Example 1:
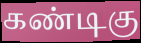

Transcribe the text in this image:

கண்டிகு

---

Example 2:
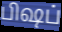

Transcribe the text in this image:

பிஷப்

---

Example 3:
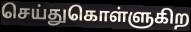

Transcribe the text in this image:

செய்துகொள்ளுகிற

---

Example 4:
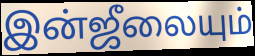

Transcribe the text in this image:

இன்ஜீலையும்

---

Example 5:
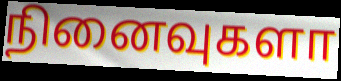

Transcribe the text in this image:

நினைவுகளா